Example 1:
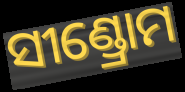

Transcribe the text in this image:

ସୀଣ୍ଡ୍ରୋମ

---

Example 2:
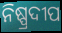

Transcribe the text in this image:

ନିଷ୍ପ୍ରଦୀପ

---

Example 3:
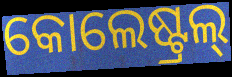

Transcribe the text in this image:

କୋଲେଷ୍ଟ୍ରଲ୍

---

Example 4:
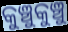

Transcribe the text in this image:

କୁଞ୍ଚୁକୁଞ୍ଚୁ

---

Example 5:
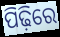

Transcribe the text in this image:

ପିଢ଼ିରେ